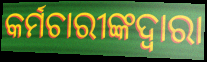
କର୍ମଚାରୀଙ୍କଦ୍ୱାରା